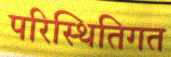
परिस्थितिगत